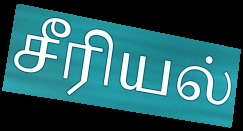
சீரியல்